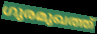
ഗുരമുഖത്ത്